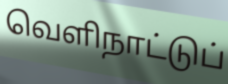
வெளிநாட்டுப்